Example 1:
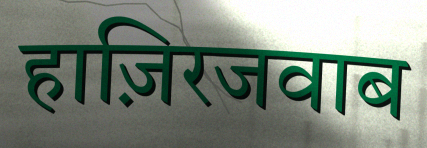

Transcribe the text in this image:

हाज़िरजवाब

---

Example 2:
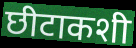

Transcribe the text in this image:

छीटाकशी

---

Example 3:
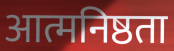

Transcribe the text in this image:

आत्मनिष्ठता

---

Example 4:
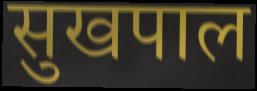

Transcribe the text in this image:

सुखपाल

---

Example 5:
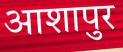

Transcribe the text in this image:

आशापुर